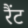
रैंट